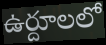
ఉర్దూలలో